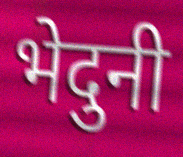
भेदुनी